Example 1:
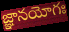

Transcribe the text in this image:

జ్ఞానయోగః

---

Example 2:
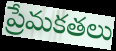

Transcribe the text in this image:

ప్రేమకతలు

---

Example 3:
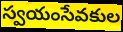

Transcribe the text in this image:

స్వయంసేవకుల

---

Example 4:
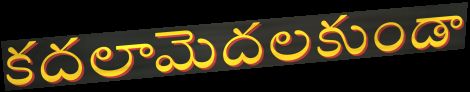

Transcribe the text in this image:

కదలామెదలకుండా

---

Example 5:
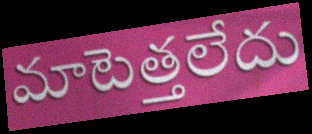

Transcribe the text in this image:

మాటెత్తలేదు